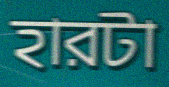
হারটা